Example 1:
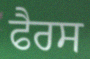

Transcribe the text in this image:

ਫੈਰਸ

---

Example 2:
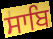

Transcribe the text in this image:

ਸਾਬਿ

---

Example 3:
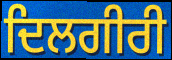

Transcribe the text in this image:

ਦਿਲਗੀਰੀ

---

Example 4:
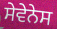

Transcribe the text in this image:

ਸੇਵੇਨੇਸ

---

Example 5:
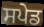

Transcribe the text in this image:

ਸਪੇਡ